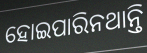
ହୋଇପାରିନଥାନ୍ତି